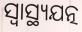
ସ୍ୱାସ୍ଥ୍ୟଯତ୍ନ